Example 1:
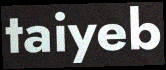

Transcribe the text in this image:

taiyeb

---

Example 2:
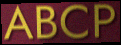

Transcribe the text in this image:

ABCP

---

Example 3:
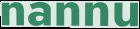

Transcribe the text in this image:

nannu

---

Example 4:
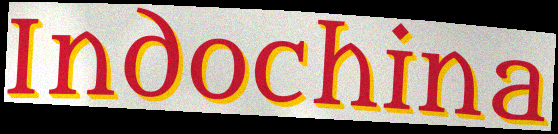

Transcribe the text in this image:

Indochina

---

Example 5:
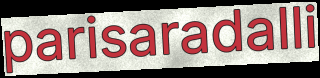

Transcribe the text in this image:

parisaradalli